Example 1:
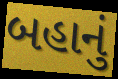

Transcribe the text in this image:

બહાનું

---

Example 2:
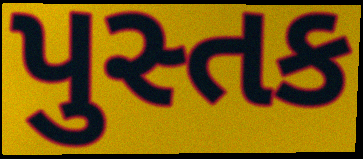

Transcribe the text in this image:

પુસ્તક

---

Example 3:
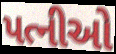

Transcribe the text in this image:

પત્નીઓ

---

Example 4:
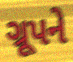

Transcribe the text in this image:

ગ્રૂપને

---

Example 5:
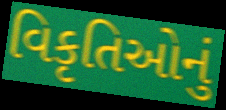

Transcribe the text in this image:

વિકૃતિઓનું